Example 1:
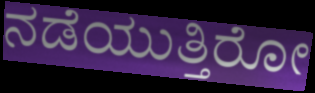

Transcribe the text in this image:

ನಡೆಯುತ್ತಿರೋ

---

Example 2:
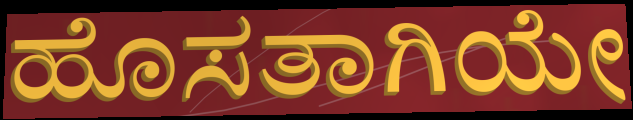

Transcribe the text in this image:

ಹೊಸತಾಗಿಯೇ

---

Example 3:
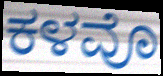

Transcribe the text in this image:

ಕಳವೊ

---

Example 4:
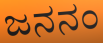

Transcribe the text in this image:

ಜನನಂ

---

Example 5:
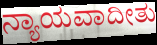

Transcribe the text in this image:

ನ್ಯಾಯವಾದೀತು